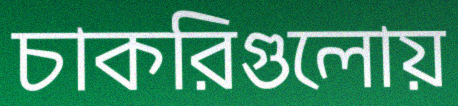
চাকরিগুলোয়